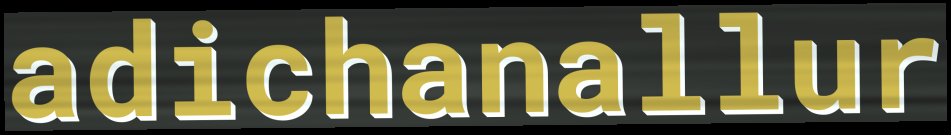
adichanallur